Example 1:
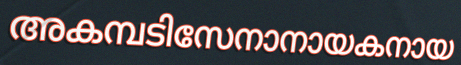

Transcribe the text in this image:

അകമ്പടിസേനാനായകനായ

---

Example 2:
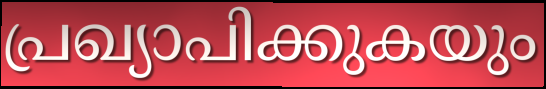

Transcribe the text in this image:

പ്രഖ്യാപിക്കുകയും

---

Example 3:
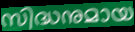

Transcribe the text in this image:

സിദ്ധനുമായ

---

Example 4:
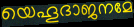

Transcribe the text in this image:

യെഹൂദാജനമേ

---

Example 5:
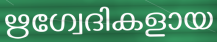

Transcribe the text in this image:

ഋഗ്വേദികളായ